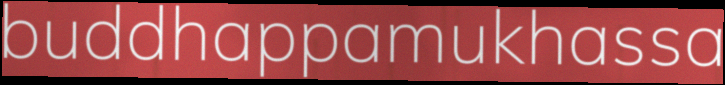
buddhappamukhassa